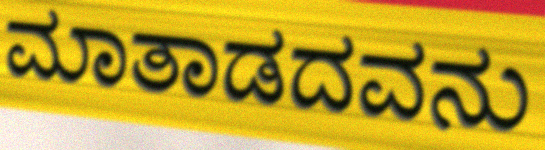
ಮಾತಾಡದವನು